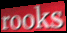
rooks